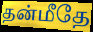
தன்மீதே